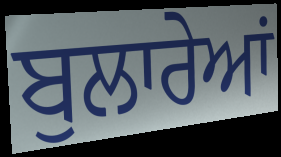
ਬੁਲਾਰੇਆਂ